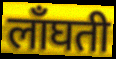
लाँघती